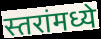
स्तरांमध्ये